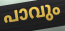
പാവും